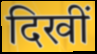
दिखीं